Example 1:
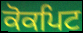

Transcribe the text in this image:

ਕੋਕਪਿਟ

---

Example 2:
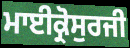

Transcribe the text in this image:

ਮਾਈਕ੍ਰੋਸੁਰਜੀ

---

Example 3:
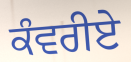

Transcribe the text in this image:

ਕੰਵਰੀਏ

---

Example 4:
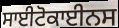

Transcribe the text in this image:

ਸਾਈਟੋਕਾਈਨਸ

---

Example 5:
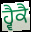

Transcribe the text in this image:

ਹ੍ਵੈਕੈ